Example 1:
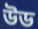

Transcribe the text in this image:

উড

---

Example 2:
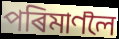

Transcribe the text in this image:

পৰিমাণলৈ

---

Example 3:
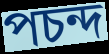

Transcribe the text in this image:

পচন্দ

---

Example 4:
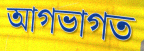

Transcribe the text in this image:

আগভাগত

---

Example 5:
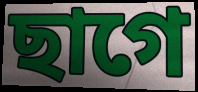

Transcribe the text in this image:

ছাগে